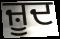
ਜ਼ੂਦ